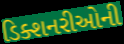
ડિક્શનરીઓની